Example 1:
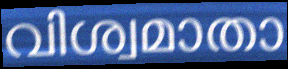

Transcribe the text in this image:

വിശ്വമാതാ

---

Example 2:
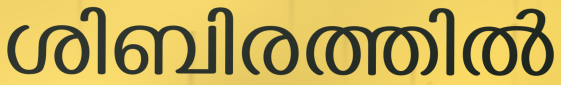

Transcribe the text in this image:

ശിബിരത്തിൽ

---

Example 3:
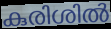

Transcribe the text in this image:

കുരിശിൽ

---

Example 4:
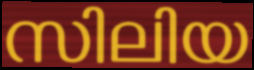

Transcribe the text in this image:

സിലിയ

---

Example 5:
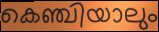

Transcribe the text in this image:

കെഞ്ചിയാലും